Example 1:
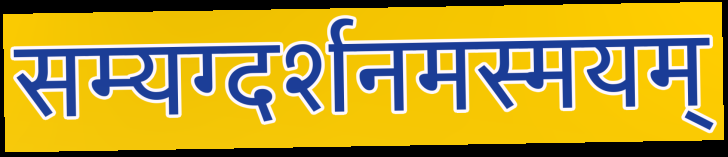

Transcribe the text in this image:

सम्यग्दर्शनमस्मयम्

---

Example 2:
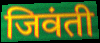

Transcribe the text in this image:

जिवंती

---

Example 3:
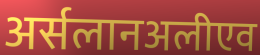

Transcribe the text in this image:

अर्सलानअलीएव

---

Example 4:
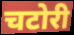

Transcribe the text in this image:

चटोरी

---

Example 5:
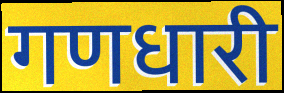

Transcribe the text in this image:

गणधारी